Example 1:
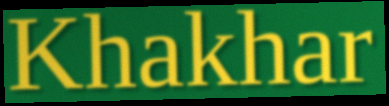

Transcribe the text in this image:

Khakhar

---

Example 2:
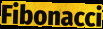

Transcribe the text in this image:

Fibonacci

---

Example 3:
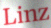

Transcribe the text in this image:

Linz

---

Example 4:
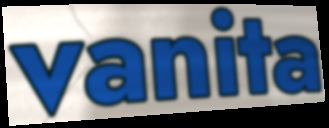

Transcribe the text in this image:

vanita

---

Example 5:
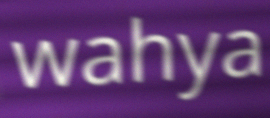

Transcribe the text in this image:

wahya